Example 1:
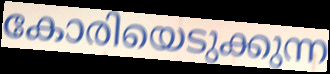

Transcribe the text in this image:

കോരിയെടുക്കുന്ന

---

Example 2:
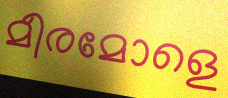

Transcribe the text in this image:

മീരമോളെ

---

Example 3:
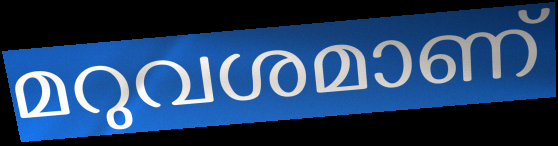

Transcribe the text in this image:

മറുവശമാണ്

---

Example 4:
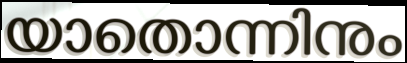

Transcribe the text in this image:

യാതൊന്നിനും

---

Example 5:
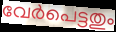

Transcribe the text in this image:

വേർപെട്ടതും